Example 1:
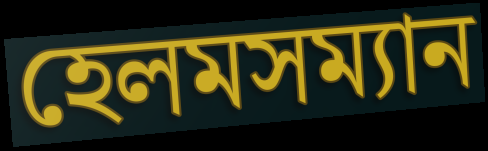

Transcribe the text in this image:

হেলমসম্যান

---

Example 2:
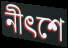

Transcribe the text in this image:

নীৎশে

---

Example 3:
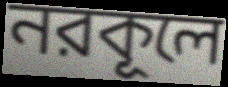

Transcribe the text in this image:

নরকূলে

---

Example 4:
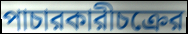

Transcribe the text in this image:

পাচারকারীচক্রের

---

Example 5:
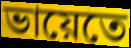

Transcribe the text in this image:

ভায়েতে